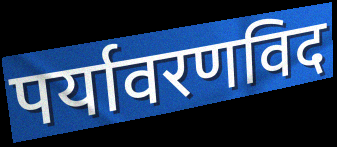
पर्यावरणविद